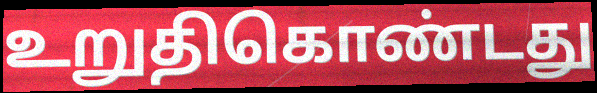
உறுதிகொண்டது